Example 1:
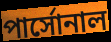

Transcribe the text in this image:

পার্সোনাল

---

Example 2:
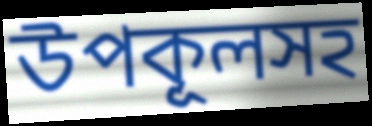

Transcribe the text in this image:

উপকূলসহ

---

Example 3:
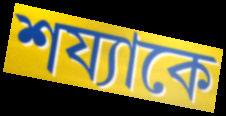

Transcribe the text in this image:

শয্যাকে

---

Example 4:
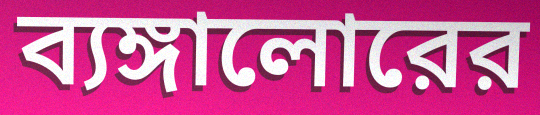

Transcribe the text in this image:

ব্যঙ্গালোরের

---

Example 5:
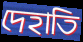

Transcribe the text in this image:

দেহাতি